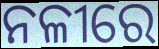
ନଳୀରେ